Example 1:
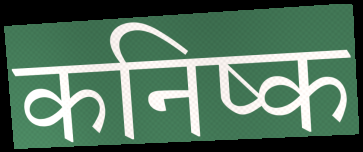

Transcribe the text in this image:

कनिष्क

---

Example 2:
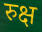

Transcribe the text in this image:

रुक्ष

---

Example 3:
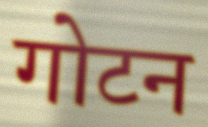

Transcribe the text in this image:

गोटन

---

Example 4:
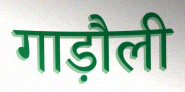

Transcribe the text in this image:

गाड़ौली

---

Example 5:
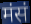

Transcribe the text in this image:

मंसं